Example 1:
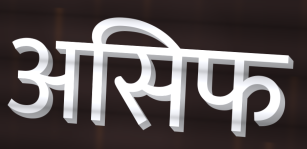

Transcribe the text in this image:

असिफ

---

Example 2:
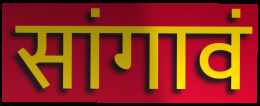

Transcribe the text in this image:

सांगावं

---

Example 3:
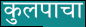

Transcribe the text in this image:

कुलपाचा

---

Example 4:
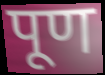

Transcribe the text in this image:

पूण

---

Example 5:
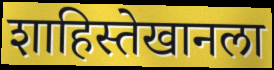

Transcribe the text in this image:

शाहिस्तेखानला